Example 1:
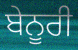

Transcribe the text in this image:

ਬੇਨੂਰੀ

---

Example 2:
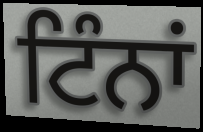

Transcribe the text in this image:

ਟਿੰਨਾਂ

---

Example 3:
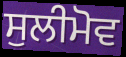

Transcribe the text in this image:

ਸੁਲੀਮੋਵ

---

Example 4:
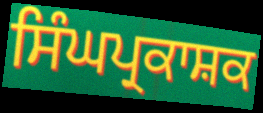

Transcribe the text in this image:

ਸਿੰਘਪ੍ਰਕਾਸ਼ਕ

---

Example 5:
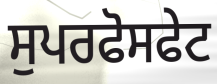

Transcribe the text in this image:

ਸੁਪਰਫੋਸਫੇਟ